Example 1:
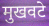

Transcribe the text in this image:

मुखवटे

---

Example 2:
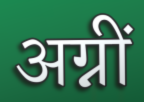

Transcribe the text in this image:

अग्नीं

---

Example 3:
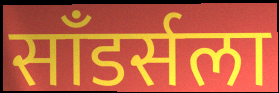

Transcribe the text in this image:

साँडर्सला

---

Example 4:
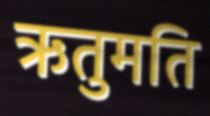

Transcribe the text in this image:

ऋतुमति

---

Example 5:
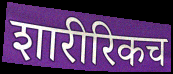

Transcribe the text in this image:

शारीरिकच